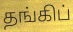
தங்கிப்